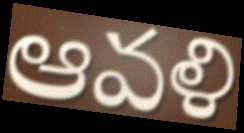
ఆవళి